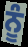
ਨੂੰ